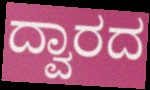
ದ್ವಾರದ